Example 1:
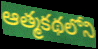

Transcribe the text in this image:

ఆత్మకథలోని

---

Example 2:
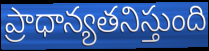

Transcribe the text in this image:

ప్రాధాన్యతనిస్తుంది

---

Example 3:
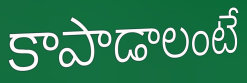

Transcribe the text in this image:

కాపాడాలంటే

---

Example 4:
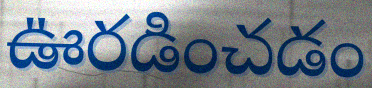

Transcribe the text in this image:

ఊరడించడం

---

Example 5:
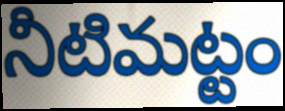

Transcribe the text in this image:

నీటిమట్టం